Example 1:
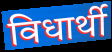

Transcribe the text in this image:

विधार्थी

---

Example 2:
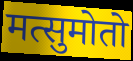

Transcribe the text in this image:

मत्सुमोतो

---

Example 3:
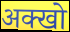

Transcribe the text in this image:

अक्खो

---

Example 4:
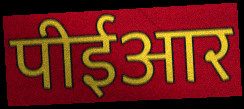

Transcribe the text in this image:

पीईआर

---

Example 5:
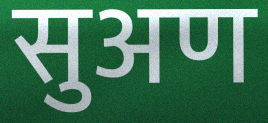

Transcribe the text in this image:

सुअण